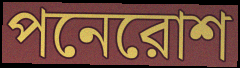
পনেরোশ